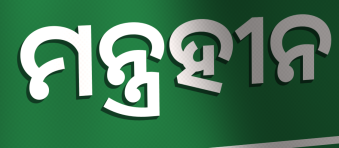
ମନ୍ତ୍ରହୀନ